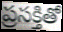
ప్రసక్తితో